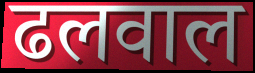
ढलवाल